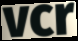
vcr